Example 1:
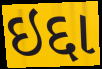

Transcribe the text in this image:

ઇદ્દા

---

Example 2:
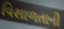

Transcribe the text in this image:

વિશાળતાની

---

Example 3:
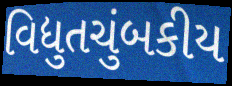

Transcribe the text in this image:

વિદ્યુતચુંબકીય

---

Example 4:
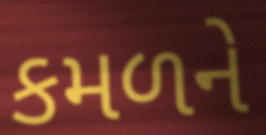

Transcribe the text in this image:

કમળને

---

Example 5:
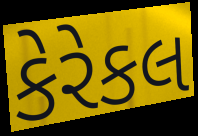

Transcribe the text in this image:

કેરેકલ